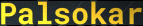
Palsokar